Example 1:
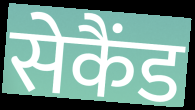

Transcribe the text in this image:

सेकैंड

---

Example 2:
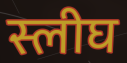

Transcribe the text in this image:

स्लीघ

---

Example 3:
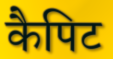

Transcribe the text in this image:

कैपिट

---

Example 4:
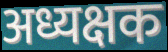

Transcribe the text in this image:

अध्यक्षक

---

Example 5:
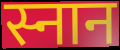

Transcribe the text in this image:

स्‍नान